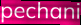
pechani